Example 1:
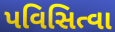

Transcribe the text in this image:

પવિસિત્વા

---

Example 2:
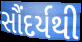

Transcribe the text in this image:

સૌંદર્યથી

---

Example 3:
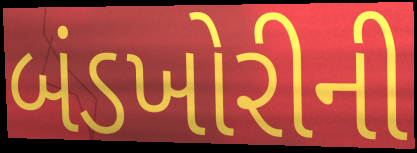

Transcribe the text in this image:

બંડખોરીની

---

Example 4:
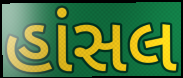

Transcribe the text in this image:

હાંસલ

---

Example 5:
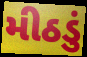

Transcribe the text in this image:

મીઠડું